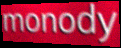
monody